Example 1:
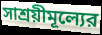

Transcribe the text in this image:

সাশ্রয়ীমূল্যের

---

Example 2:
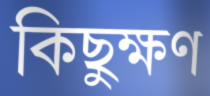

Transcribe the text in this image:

কিছুক্ষণ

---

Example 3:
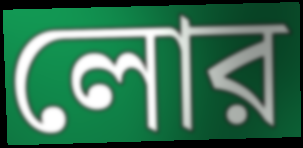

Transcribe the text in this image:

লোর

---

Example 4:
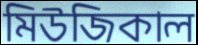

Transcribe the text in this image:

মিউজিকাল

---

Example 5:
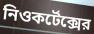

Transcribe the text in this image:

নিওকর্টেক্সের